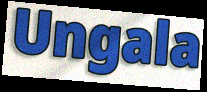
Ungala